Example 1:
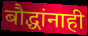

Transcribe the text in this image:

बौद्धांनाही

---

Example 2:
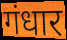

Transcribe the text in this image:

गंधार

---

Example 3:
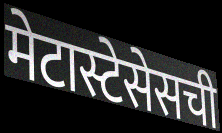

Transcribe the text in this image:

मेटास्टेसेसची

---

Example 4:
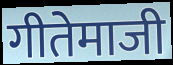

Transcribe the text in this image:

गीतेमाजी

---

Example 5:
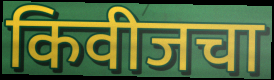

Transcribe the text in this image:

किवीजचा